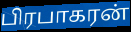
பிரபாகரன்